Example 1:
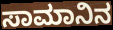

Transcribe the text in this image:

ಸಾಮಾನಿನ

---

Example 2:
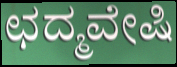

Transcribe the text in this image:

ಛದ್ಮವೇಷಿ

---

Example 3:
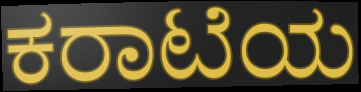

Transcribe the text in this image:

ಕರಾಟೆಯ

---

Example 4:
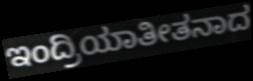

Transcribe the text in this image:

ಇಂದ್ರಿಯಾತೀತನಾದ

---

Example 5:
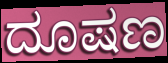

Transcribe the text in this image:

ದೂಷಣ